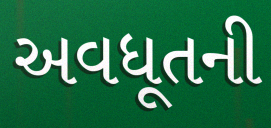
અવધૂતની